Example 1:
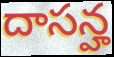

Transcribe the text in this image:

దాసన్హ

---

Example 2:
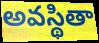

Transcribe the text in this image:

అవస్థితా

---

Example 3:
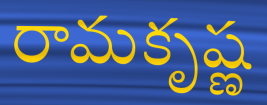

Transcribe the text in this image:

రామకృష్ణ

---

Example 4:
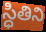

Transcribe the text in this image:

స్ధితిని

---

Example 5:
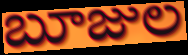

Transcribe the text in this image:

బూజుల